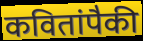
कवितांपैकी